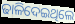
ଢାଳିଦେଇଥିଲେ